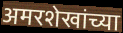
अमरशेखांच्या